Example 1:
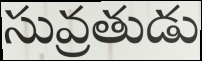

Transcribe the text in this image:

సువ్రతుడు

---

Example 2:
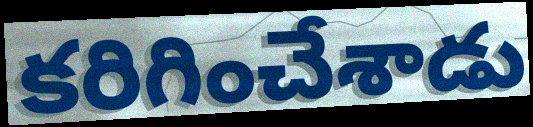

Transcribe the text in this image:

కరిగించేశాడు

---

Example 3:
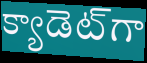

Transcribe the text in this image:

క్యాడెట్‌గా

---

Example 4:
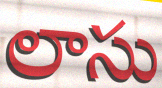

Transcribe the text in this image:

లాసు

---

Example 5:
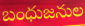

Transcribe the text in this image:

బంధుజనుల